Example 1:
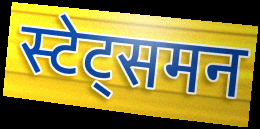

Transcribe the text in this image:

स्टेट्समन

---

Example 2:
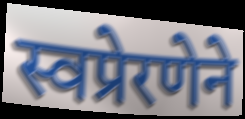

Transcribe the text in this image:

स्वप्रेरणेने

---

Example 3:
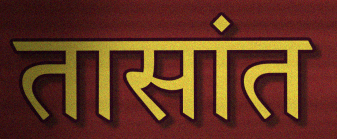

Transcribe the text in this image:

तासांत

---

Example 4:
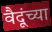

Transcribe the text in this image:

वैदूंच्या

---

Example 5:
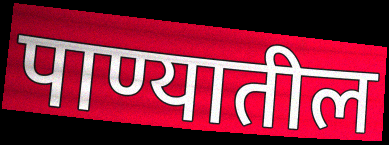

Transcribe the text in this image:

पाण्यातील